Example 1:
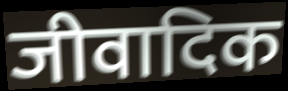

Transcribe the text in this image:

जीवादिक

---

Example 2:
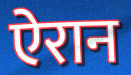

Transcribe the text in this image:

ऐरान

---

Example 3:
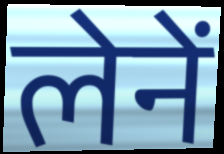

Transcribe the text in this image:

लेनें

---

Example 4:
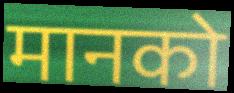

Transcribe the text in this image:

मानको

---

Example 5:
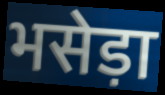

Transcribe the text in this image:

भसेड़ा